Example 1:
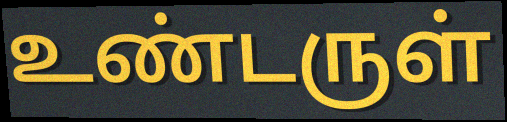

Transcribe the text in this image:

உண்டருள்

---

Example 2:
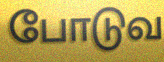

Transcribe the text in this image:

போடுவ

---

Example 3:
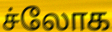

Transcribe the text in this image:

ச்லோக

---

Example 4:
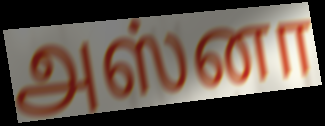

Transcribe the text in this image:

அஸ்னா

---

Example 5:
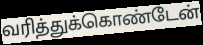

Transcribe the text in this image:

வரித்துக்கொண்டேன்